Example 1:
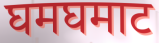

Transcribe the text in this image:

घमघमाट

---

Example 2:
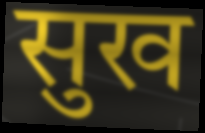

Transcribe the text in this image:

सुख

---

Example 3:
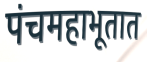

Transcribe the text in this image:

पंचमहाभूतात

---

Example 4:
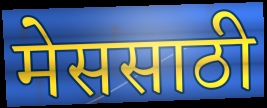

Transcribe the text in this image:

मेससाठी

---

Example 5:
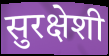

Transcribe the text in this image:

सुरक्षेशी